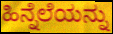
ಹಿನ್ನೆಲೆಯನ್ನು